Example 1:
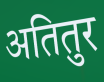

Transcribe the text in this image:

अतितुर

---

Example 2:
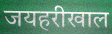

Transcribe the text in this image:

जयहरीखाल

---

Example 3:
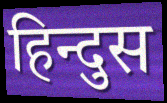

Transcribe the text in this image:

हिन्दुस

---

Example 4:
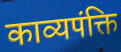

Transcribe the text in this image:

काव्यपंक्ति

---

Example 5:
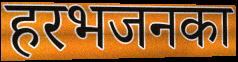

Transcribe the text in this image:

हरभजनका